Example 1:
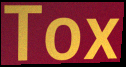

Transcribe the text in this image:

Tox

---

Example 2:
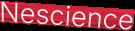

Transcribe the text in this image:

Nescience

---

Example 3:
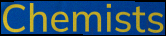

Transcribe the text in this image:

Chemists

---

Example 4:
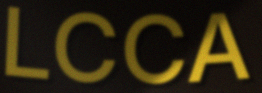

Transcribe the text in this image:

LCCA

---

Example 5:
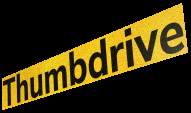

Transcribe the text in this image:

Thumbdrive